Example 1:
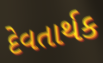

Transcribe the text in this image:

દેવતાર્થક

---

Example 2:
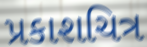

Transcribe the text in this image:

પ્રકાશચિત્ર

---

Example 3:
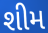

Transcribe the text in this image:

શીમ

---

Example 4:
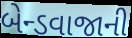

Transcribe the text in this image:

બેન્ડવાજાની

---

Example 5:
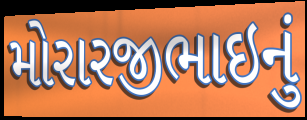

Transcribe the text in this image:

મોરારજીભાઇનું